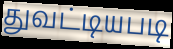
துவட்டியபடி